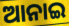
ଆନାଇ